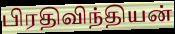
பிரதிவிந்தியன்